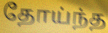
தோய்ந்த